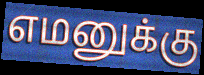
எமனுக்கு